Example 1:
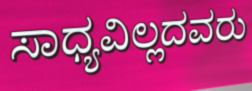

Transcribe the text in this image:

ಸಾಧ್ಯವಿಲ್ಲದವರು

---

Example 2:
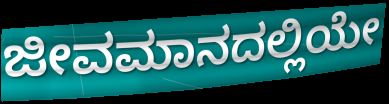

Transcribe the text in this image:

ಜೀವಮಾನದಲ್ಲಿಯೇ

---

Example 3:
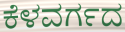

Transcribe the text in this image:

ಕೆಳವರ್ಗದ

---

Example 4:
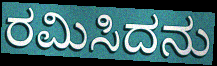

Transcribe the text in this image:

ರಮಿಸಿದನು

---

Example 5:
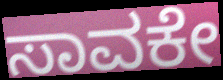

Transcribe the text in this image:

ಸಾವಕೇ